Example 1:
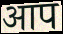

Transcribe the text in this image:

आप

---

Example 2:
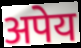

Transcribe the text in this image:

अपेय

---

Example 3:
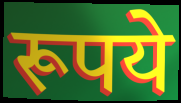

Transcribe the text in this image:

रूपये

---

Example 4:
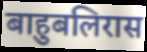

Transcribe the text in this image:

बाहुबलिरास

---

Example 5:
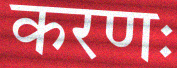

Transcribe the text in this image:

करणः